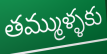
తమ్ముళ్ళకు